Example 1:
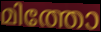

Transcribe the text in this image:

മിത്തോ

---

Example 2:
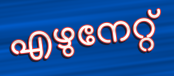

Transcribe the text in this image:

എഴുനേറ്റ്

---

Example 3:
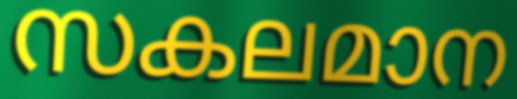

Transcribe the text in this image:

സകലമാന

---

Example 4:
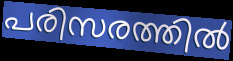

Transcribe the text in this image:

പരിസരത്തിൽ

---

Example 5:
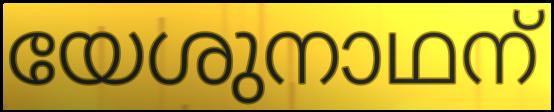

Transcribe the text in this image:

യേശുനാഥന്